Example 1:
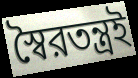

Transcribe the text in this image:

স্বৈরতন্ত্রই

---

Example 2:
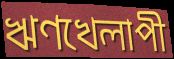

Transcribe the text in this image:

ঋণখেলাপী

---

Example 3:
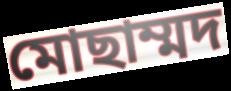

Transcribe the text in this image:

মোছাম্মদ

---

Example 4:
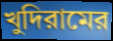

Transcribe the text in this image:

খুদিরামের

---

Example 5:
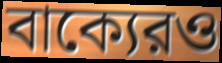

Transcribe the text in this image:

বাক্যেরও